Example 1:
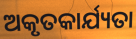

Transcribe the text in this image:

ଅକୃତକାର୍ଯ୍ୟତା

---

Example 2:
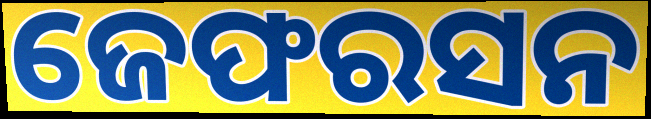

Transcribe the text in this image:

ଜେଫରସନ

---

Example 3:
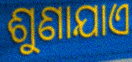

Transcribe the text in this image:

ଶୁଣାଯାଏ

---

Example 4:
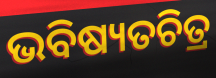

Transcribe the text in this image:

ଭବିଷ୍ୟତଚିତ୍ର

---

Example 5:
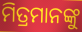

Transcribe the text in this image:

ମିତ୍ରମାନଙ୍କୁ